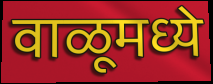
वाळूमध्ये